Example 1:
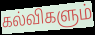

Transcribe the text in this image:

கல்விகளும்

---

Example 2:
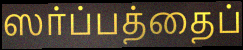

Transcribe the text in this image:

ஸர்ப்பத்தைப்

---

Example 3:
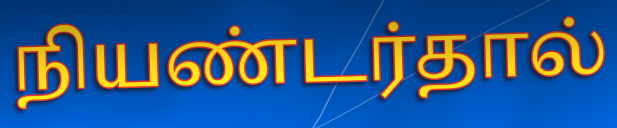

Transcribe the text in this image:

நியண்டர்தால்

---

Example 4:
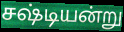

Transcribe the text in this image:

சஷ்டியன்று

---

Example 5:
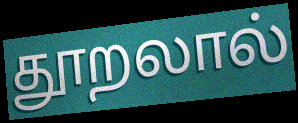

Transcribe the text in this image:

தூறலால்